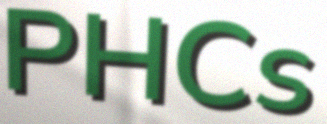
PHCs